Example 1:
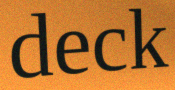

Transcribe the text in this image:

deck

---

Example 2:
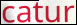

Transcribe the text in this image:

catur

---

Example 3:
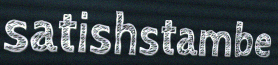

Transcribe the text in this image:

satishstambe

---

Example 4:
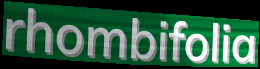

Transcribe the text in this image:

rhombifolia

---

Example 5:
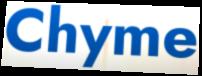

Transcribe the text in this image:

Chyme